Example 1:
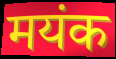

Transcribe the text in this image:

मयंक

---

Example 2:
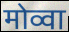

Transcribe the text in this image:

मोव्वा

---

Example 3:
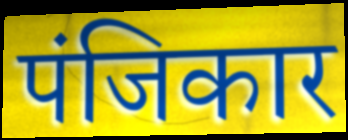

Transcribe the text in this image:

पंजिकार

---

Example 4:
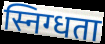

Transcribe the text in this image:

स्निग्धता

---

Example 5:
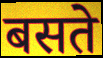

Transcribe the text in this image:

बसते